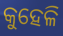
କୁହେଳି